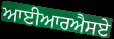
ਆਈਆਰਐਸਏ